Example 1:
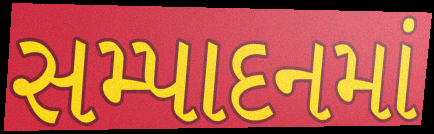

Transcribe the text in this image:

સમ્પાદનમાં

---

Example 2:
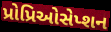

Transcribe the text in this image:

પ્રોપ્રિઓસેપ્શન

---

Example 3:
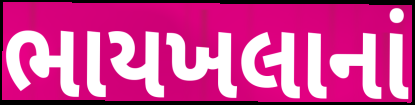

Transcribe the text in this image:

ભાયખલાનાં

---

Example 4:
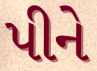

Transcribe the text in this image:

પીને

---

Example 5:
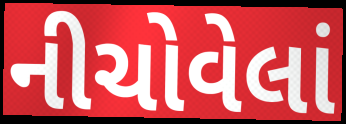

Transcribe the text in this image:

નીચોવેલાં